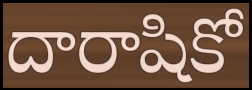
దారాషికో